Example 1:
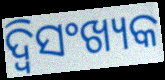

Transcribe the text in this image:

ଦ୍ୱିସଂଖ୍ୟକ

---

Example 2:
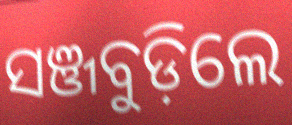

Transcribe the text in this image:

ସଞ୍ଜବୁଡ଼ିଲେ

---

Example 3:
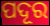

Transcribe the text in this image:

ପଦୂର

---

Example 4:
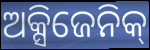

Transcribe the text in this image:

ଅକ୍ସିଜେନିକ୍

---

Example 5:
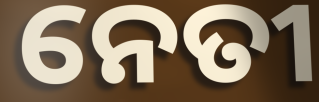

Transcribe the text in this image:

ନେତୀ